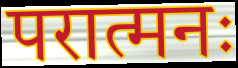
परात्मनः